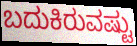
ಬದುಕಿರುವಷ್ಟು